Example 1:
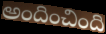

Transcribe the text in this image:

అందించింది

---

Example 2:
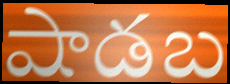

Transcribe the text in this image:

షాడబ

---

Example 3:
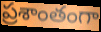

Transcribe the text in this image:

ప్రశాంతంగా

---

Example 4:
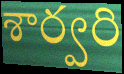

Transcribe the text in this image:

శార్వరి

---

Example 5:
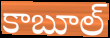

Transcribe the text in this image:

కాబూల్